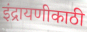
इंद्रायणीकाठी